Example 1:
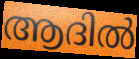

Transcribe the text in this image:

ആദിൽ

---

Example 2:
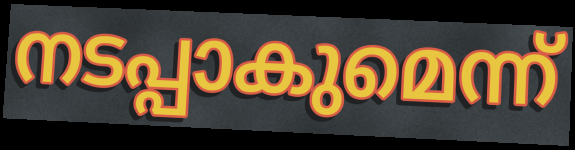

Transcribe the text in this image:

നടപ്പാകുമെന്ന്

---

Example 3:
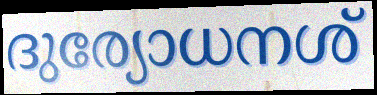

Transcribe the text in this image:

ദുര്യോധനശ്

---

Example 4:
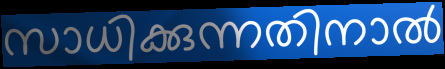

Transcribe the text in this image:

സാധിക്കുന്നതിനാൽ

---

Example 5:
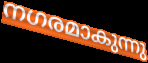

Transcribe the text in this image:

നഗരമാകുന്നു